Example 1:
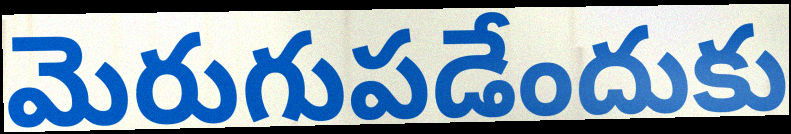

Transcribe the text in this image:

మెరుగుపడేందుకు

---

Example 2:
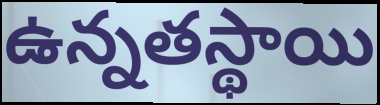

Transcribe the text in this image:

ఉన్నతస్థాయి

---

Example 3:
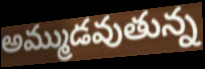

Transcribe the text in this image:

అమ్ముడవుతున్న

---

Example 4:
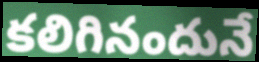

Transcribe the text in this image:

కలిగినందునే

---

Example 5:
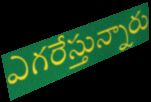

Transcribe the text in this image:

ఎగరేస్తున్నారు